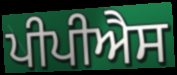
ਪੀਪੀਐਸ